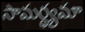
సామర్థ్యమా